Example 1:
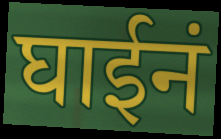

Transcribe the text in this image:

घाईनं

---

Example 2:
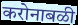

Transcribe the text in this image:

करोनाबळी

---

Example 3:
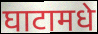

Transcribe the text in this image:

घाटामधे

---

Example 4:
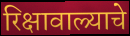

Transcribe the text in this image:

रिक्षावाल्याचे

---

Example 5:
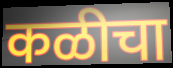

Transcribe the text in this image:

कळीचा